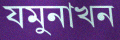
যমুনাখন